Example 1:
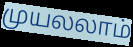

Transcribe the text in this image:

முயலலாம்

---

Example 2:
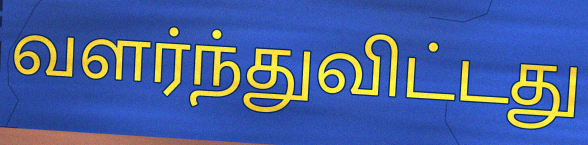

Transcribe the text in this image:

வளர்ந்துவிட்டது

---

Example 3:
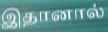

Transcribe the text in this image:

இதானால்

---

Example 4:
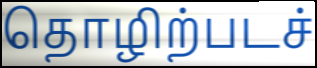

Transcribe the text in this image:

தொழிற்படச்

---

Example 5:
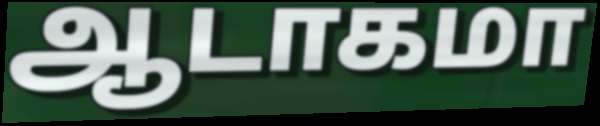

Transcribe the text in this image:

ஆடாகமா